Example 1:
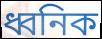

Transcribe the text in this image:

ধ্বনিক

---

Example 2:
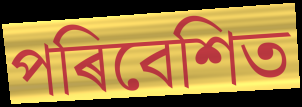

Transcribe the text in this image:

পৰিবেশিত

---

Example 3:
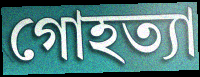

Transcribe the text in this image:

গোহত্যা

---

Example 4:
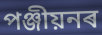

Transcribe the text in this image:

পঞ্জীয়নৰ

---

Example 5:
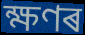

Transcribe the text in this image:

ক্ষণৰ